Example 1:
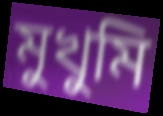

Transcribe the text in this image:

মুখুমি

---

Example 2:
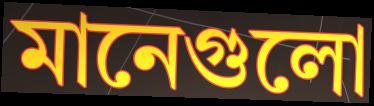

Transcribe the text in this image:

মানেগুলো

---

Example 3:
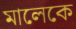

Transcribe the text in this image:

মালেকে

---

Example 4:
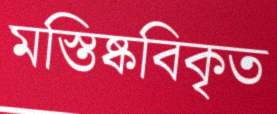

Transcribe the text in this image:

মস্তিষ্কবিকৃত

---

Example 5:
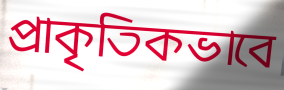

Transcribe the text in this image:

প্রাকৃতিকভাবে